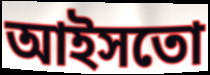
আইসতো